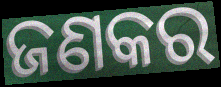
ଜଣକର